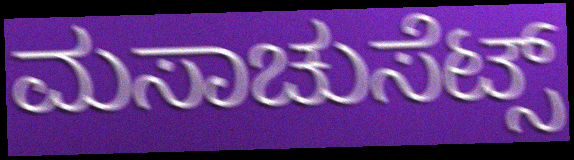
ಮಸಾಚುಸೆಟ್ಸ್